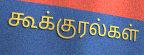
கூக்குரல்கள்